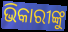
ଭିକାରୀଙ୍କୁ